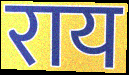
राय